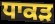
ਧਾਕੜ